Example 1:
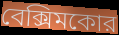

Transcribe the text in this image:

বেক্সিমকোর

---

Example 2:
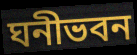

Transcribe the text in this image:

ঘনীভবন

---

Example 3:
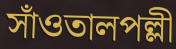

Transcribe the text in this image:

সাঁওতালপল্লী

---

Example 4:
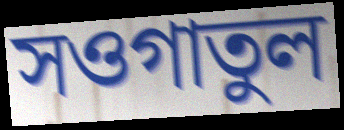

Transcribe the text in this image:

সওগাতুল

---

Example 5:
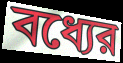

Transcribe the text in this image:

বধ্যের